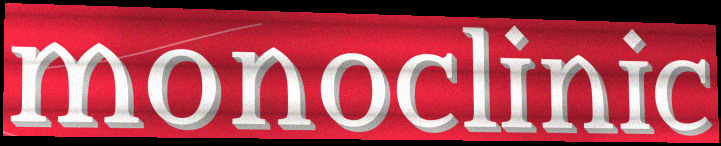
monoclinic